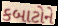
કબાટોને